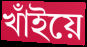
খাঁইয়ে